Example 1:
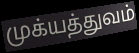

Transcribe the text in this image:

முக்யத்துவம்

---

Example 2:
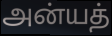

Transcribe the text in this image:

அன்யத்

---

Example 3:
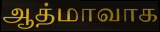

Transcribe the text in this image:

ஆத்மாவாக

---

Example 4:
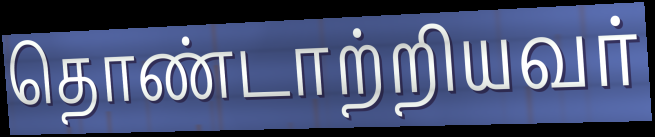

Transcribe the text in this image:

தொண்டாற்றியவர்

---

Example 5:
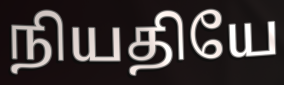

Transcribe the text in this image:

நியதியே